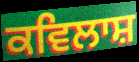
ਕਵਿਲਾਸ਼